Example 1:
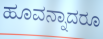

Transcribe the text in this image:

ಹೂವನ್ನಾದರೂ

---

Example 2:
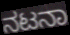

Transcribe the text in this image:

ನಟನಾ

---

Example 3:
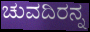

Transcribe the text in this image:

ಚುವದಿರನ್ನ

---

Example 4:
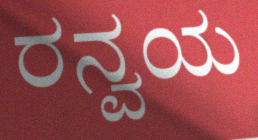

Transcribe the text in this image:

ರನ್ವಯ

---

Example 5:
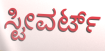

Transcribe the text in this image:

ಸ್ಟೀವರ್ಟ್